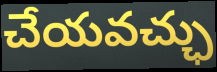
చేయవచ్ఛు